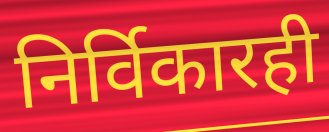
निर्विकारही